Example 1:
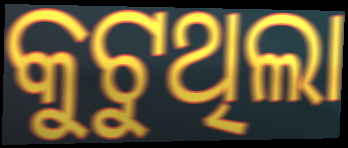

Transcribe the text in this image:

କୁଟୁଥିଲା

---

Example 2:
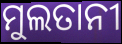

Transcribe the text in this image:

ମୁଲତାନୀ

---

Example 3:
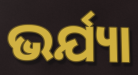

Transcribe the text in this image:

ଭର୍ଯ୍ୟା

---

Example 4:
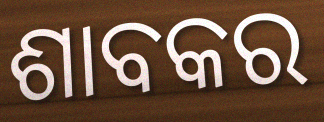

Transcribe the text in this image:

ଶାବକର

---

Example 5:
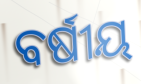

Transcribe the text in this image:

ବର୍ଷୀୟ